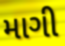
માગી